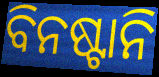
ବିନଷ୍ଟାନି